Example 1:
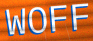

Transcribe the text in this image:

WOFF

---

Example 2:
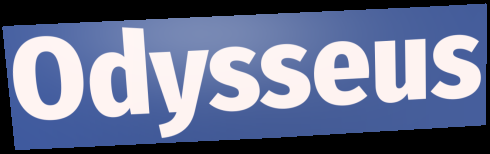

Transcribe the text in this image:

Odysseus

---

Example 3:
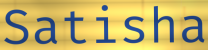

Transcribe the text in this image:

Satisha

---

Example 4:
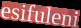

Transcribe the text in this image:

esifuleni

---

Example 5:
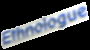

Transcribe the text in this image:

Ethnologue